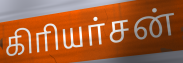
கிரியர்சன்